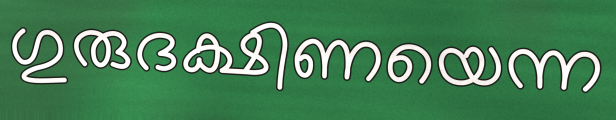
ഗുരുദക്ഷിണയെന്ന